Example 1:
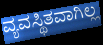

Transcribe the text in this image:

ವ್ಯವಸ್ಥಿತವಾಗಿಲ್ಲ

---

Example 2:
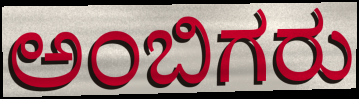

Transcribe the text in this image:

ಅಂಬಿಗರು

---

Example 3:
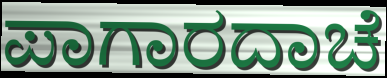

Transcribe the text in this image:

ಪಾಗಾರದಾಚೆ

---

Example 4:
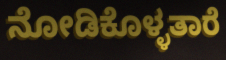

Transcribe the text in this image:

ನೋಡಿಕೊಳ್ಳತಾರೆ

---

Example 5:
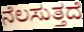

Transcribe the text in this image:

ನೆಲಸುತ್ತದೆ